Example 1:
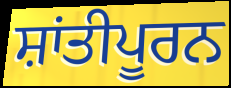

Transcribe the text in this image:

ਸ਼ਾਂਤੀਪੂਰਨ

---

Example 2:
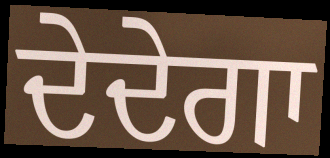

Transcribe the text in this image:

ਦੇਦੇਗਾ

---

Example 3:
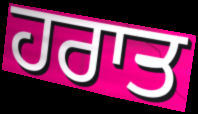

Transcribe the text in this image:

ਹਰਾਤ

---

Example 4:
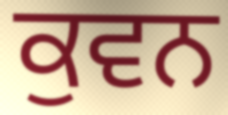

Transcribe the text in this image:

ਕੁਵਨ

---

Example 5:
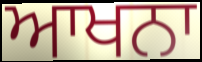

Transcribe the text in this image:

ਆਖਨਾ